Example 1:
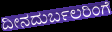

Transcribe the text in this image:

ದೀನದುರ್ಬಲರಿಂಗೆ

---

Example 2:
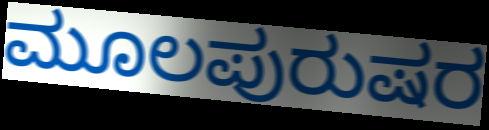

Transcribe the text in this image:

ಮೂಲಪುರುಷರ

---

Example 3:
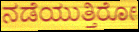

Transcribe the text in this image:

ನಡೆಯುತ್ತಿರೋ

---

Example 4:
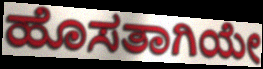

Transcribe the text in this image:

ಹೊಸತಾಗಿಯೇ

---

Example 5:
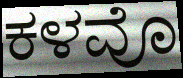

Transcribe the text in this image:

ಕಳವೊ